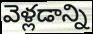
వెళ్లడాన్ని